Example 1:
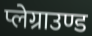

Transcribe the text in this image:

प्लेग्राउण्ड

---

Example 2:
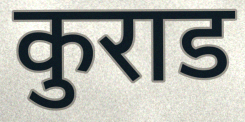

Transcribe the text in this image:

कुराड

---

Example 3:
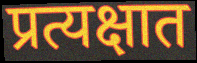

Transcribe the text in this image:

प्रत्यक्षात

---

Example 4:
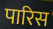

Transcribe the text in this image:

पारिस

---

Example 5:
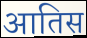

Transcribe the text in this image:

आतिस